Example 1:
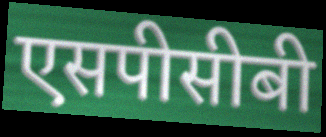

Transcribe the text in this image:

एसपीसीबी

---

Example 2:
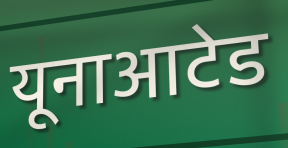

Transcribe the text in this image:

यूनाआटेड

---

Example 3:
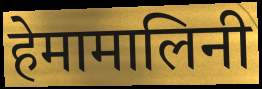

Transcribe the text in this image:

हेमामालिनी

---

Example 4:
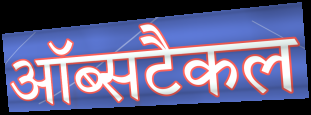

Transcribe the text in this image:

ऑब्सटैकल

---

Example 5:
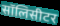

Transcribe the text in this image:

सॉलिसीटर